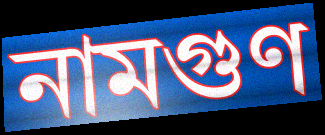
নামগুণ